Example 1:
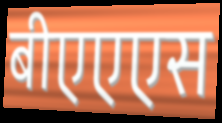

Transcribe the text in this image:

बीएएएस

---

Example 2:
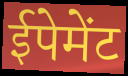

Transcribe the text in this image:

ईपेमेंट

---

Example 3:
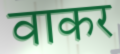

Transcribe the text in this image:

वाकर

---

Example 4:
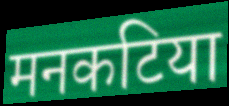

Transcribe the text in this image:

मनकटिया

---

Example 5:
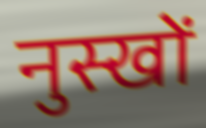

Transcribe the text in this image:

नुस्‍खों